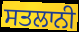
ਸਤਲਾਨੀ